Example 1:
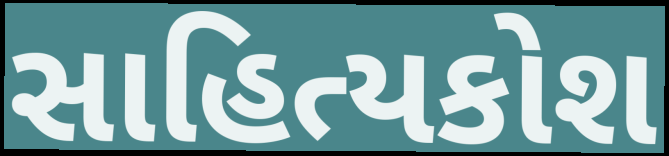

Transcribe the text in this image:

સાહિત્યકોશ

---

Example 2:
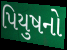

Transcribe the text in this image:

પિયુષનો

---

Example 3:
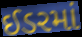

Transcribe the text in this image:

ઈડરમાં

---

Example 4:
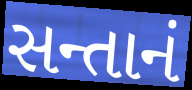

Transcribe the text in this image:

સન્તાનં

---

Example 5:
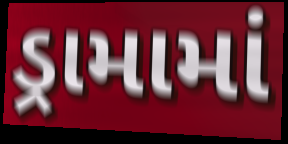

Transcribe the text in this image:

ડ્રામામાં